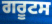
ਗਰੂਟਸ